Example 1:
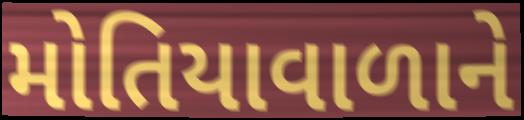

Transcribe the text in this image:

મોતિયાવાળાને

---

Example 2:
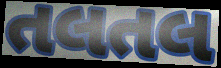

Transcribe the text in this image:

તલતલ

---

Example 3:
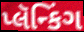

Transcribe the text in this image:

પ્લૅન્કિંગ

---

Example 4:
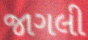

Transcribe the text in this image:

જાગલી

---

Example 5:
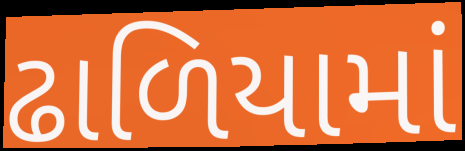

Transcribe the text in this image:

ઢાળિયામાં